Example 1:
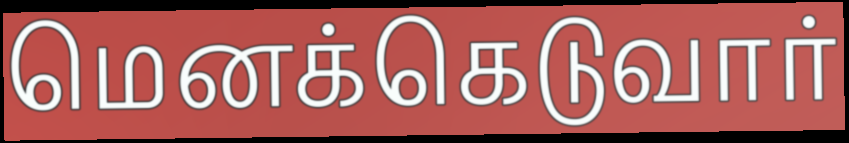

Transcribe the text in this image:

மெனக்கெடுவார்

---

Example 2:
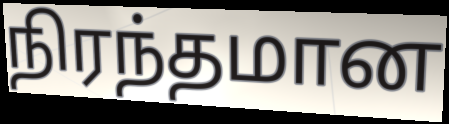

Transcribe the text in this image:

நிரந்தமான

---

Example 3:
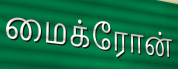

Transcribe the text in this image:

மைக்ரோன்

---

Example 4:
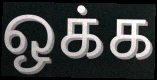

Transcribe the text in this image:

ஒக்க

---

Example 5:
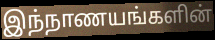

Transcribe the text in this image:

இந்நாணயங்களின்